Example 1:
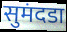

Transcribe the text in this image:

सुमंदडा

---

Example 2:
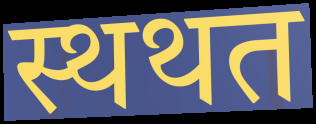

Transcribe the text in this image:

स्थथत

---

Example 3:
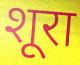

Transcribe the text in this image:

शूरा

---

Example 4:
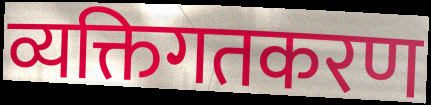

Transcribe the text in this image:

व्यक्तिगतकरण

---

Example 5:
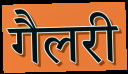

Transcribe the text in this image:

गैलरी